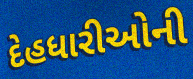
દેહધારીઓની